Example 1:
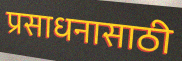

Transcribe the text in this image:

प्रसाधनासाठी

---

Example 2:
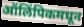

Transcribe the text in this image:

ऑलिंपिकमधून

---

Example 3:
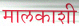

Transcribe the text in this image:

मालकाशी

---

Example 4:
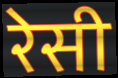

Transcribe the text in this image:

रेसी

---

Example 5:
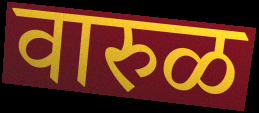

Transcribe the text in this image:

वारुळ